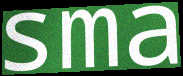
sma